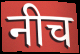
नीच